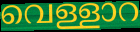
വെള്ളാറ